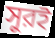
সুরই